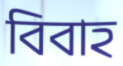
বিবাহ